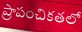
ప్రాపంచికతలో